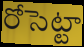
రోసెట్టా